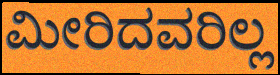
ಮೀರಿದವರಿಲ್ಲ